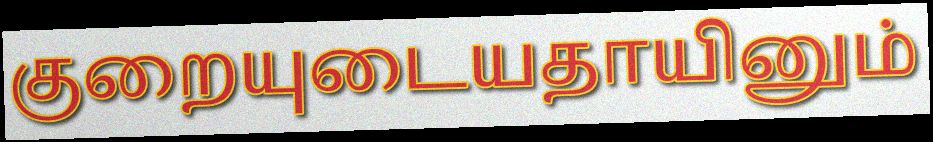
குறையுடையதாயினும்